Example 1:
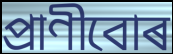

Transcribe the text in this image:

প্ৰাণীবোৰ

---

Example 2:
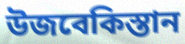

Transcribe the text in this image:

উজবেকিস্তান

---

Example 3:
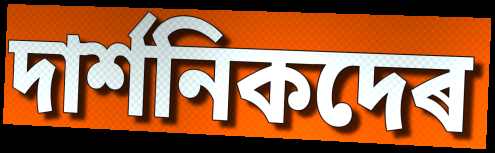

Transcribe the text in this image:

দাৰ্শনিকদেৰ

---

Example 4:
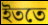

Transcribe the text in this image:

ইততে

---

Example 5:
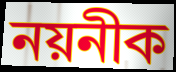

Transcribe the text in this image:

নয়নীক